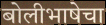
बोलीभाषेचा